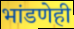
भांडणेही